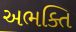
અભક્તિ